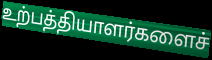
உற்பத்தியாளர்களைச்